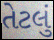
તેટલું